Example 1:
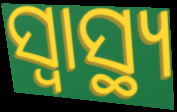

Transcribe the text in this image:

ସ୍ୱାସ୍ଥ୍ୟ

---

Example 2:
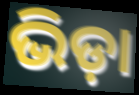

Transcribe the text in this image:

ଭିଡ଼ା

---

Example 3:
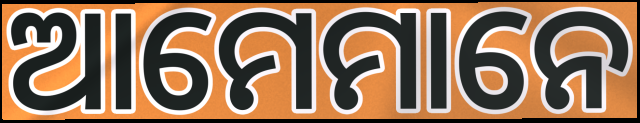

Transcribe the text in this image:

ଆମେମାନେ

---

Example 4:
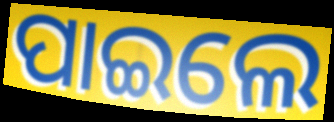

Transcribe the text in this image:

ପାଇଲେ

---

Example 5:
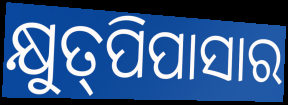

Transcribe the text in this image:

କ୍ଷୁତ୍‌ପିପାସାର